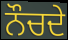
ਨੌਚਦੇ